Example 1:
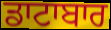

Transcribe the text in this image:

ਡਾਟਾਬਾਰ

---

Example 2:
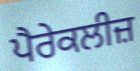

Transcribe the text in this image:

ਪੈਰੇਕਲੀਜ਼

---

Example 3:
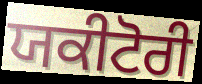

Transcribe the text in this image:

ਯਕੀਟੋਰੀ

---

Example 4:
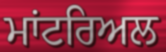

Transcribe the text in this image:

ਮਾਂਟਰਿਅਲ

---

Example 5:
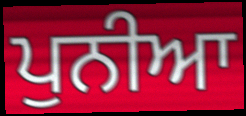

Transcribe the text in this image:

ਪੁਨੀਆ